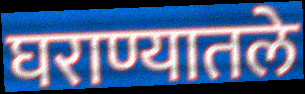
घराण्यातले